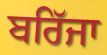
ਬਰਿੱਜਾ